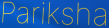
Pariksha